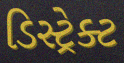
ડિસ્ટ્રેક્ટ